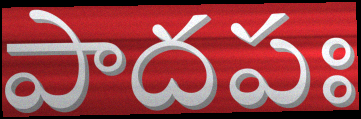
పాదపః